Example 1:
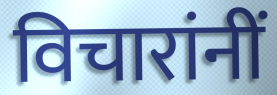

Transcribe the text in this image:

विचारांनीं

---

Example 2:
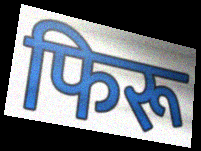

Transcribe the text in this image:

फिरू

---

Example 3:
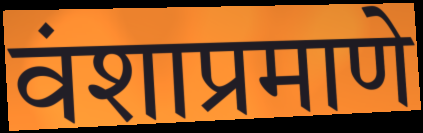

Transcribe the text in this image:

वंशाप्रमाणे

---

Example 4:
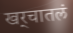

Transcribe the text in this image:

खर्चातलं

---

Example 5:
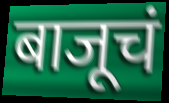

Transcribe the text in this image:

बाजूचं